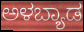
ಅಳಬ್ಯಾಡ